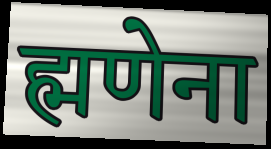
ह्मणेना